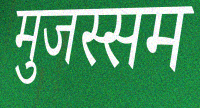
मुजस्सम